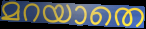
മറയാതെ